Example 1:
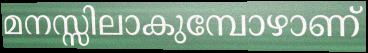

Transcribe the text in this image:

മനസ്സിലാകുമ്പോഴാണ്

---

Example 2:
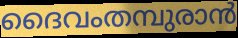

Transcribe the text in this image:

ദൈവംതമ്പുരാൻ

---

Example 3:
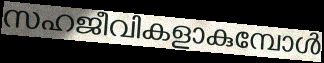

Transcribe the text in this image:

സഹജീവികളാകുമ്പോൾ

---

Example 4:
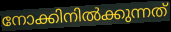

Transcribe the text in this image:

നോക്കിനിൽക്കുന്നത്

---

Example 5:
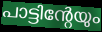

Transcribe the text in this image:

പാട്ടിന്റേയും